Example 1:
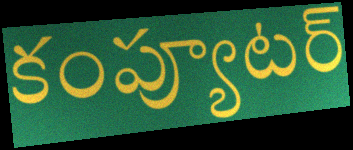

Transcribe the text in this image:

కంప్యూటర్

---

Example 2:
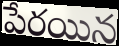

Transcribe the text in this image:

పేరయిన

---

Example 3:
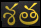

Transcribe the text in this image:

శత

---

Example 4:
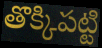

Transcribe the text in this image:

తొక్కిపట్టి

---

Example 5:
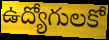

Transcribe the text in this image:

ఉద్యోగులకో